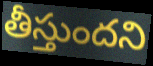
తీస్తుందని